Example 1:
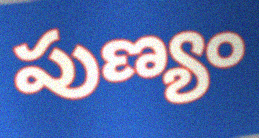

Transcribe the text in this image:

పుణ్యం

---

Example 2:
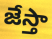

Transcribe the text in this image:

జేస్తా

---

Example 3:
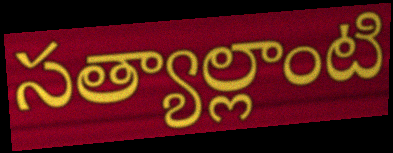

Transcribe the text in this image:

సత్యాల్లాంటి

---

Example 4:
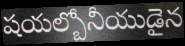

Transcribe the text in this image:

షయల్బోనీయుడైన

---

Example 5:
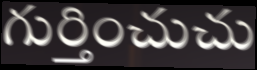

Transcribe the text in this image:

గుర్తించుచు